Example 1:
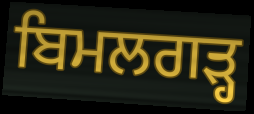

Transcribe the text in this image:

ਬਿਮਲਗੜ੍ਹ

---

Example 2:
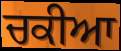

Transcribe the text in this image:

ਚਕੀਆ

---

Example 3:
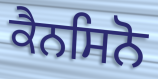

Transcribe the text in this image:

ਕੈਨਸਿਨੋ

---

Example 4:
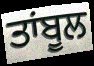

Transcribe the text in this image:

ਤਾਂਬੂਲ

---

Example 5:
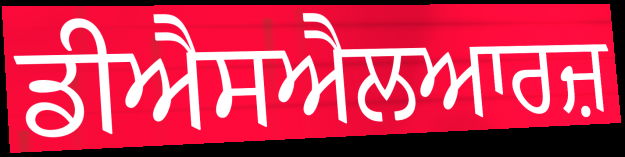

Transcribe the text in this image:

ਡੀਐਸਐਲਆਰਜ਼